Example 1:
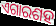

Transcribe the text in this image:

ଏଗାରଶହ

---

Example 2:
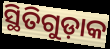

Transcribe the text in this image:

ସ୍ଥିତିଗୁଡ଼ାକ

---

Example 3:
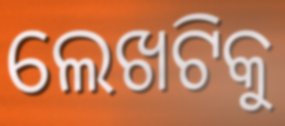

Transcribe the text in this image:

ଲେଖଟିକୁ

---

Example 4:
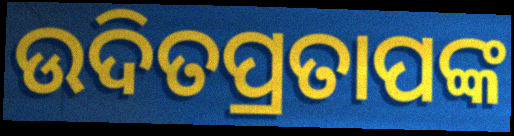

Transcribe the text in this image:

ଉଦିତପ୍ରତାପଙ୍କ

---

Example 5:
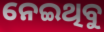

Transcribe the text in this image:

ନେଇଥିବୁ